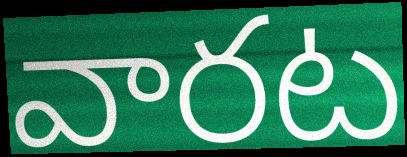
వారట